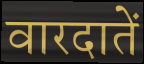
वारदातें